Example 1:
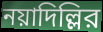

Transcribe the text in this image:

নয়াদিল্লির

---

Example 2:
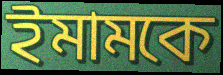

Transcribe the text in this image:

ইমামকে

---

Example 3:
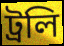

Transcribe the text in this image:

ট্রলি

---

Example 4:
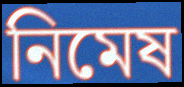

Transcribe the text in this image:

নিমেষ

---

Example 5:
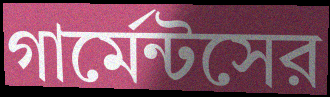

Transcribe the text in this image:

গার্মেন্টসের